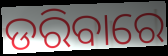
ଡରିବାରେ